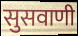
सुसवाणी